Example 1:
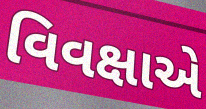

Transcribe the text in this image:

વિવક્ષાએ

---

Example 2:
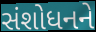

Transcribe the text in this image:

સંશોધનને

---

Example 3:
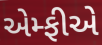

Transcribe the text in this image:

એમ્ફીએ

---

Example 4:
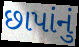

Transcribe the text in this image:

છાપાંનું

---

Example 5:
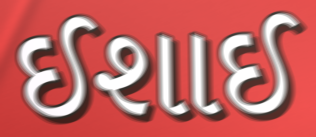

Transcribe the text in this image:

ઈશાઈ